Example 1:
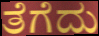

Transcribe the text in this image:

ತೆಗೆದು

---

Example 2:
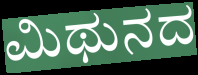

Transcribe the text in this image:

ಮಿಥುನದ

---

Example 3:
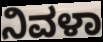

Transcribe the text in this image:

ನಿವಳಾ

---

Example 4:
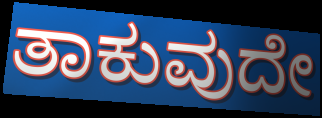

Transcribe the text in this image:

ತಾಕುವುದೇ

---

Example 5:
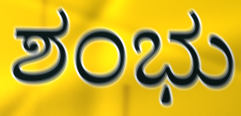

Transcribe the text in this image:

ಶಂಭು